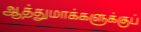
ஆத்துமாக்களுக்குப்